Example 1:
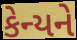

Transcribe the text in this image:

કેન્યને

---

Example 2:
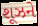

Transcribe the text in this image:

શૂઝને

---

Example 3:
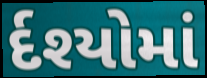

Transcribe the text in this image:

ર્દશ્યોમાં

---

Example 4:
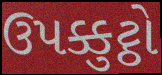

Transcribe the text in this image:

ઉપક્કુટ્ઠો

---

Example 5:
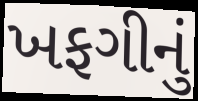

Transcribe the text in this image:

ખફગીનું